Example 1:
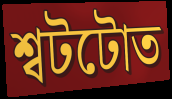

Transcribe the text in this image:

শ্বটটোত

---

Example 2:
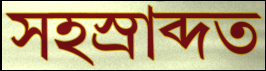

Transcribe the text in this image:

সহস্ৰাব্দত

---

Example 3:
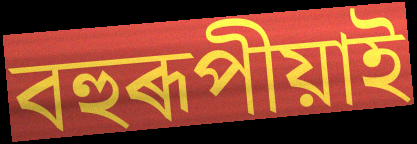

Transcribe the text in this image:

বহুৰূপীয়াই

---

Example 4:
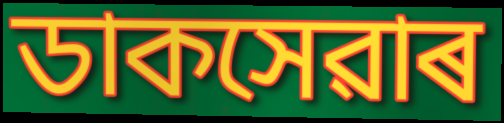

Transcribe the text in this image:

ডাকসেৱাৰ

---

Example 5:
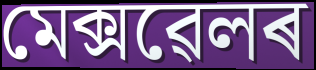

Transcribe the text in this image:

মেক্সৱেলৰ